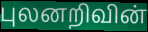
புலனறிவின்